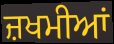
ਜ਼ਖਮੀਆਂ